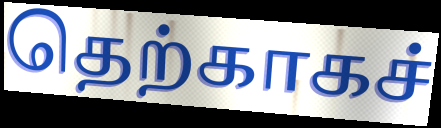
தெற்காகச்